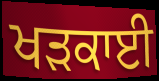
ਖੜਕਾਈ